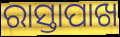
ରାସ୍ତାପାଖ